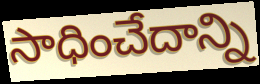
సాధించేదాన్ని